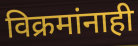
विक्रमांनाही